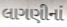
લાગણીનાં